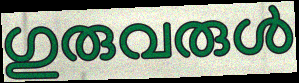
ഗുരുവരുൾ